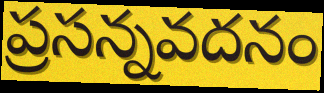
ప్రసన్నవదనం